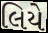
લિયે